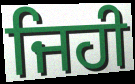
ਜਿਹੀ